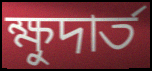
ক্ষুদার্ত